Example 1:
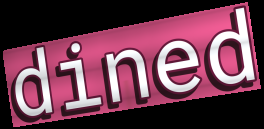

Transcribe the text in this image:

dined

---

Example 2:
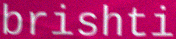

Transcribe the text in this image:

brishti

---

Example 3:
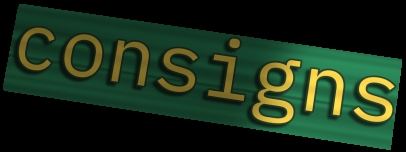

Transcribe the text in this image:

consigns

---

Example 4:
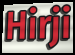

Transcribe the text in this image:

Hirji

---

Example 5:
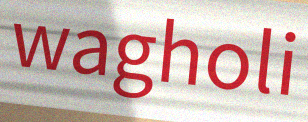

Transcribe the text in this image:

wagholi